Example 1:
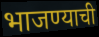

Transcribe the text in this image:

भाजण्याची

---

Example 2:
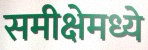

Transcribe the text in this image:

समीक्षेमध्ये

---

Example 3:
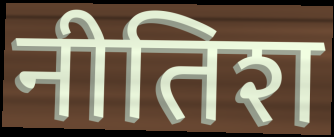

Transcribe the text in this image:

नीतिश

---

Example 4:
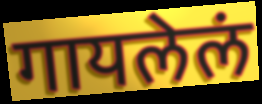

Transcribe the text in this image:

गायलेलं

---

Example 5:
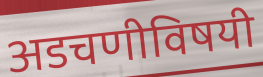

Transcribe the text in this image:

अडचणीविषयी